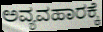
ಅವ್ಯವಹಾರಕ್ಕೆ